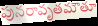
పునరావృతమౌతూ